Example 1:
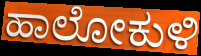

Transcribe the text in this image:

ಹಾಲೋಕುಳಿ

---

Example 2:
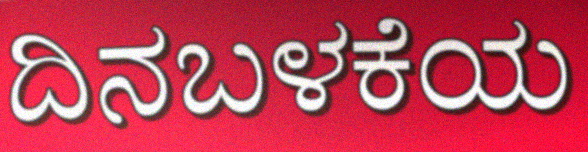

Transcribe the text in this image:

ದಿನಬಳಕೆಯ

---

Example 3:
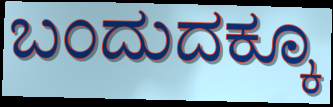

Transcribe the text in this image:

ಬಂದುದಕ್ಕೂ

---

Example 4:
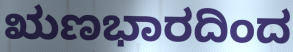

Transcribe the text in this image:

ಋಣಭಾರದಿಂದ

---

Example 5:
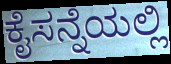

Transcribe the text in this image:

ಕೈಸನ್ನೆಯಲ್ಲಿ